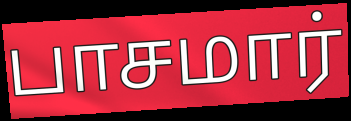
பாசமார்